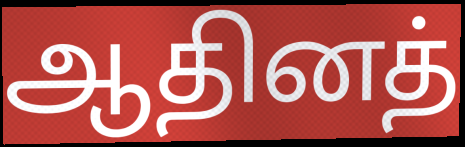
ஆதினத்